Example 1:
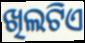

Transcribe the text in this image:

ଖିଲଟିଏ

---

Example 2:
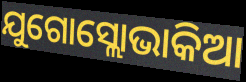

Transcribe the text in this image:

ଯୁଗୋସ୍ଲୋଭାକିଆ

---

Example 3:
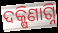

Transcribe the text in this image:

ଦକ୍ଷିଣାଗ୍ନି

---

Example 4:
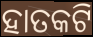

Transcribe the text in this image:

ହାତକଟି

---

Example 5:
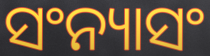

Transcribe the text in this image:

ସଂନ୍ୟାସଂ